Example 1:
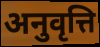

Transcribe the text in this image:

अनुवृत्ति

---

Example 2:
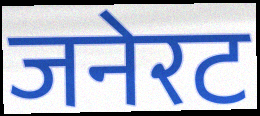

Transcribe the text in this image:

जनेरट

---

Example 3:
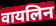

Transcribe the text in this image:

वायलिन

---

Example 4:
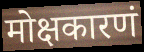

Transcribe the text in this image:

मोक्षकारणं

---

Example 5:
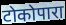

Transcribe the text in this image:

टोकोपारा